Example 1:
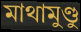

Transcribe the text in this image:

মাথামুণ্ডু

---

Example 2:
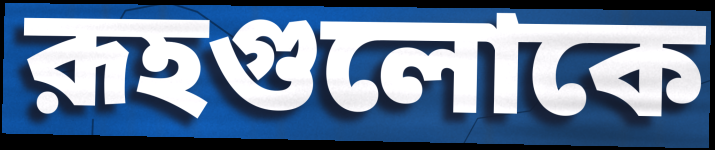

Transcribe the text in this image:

রূহগুলোকে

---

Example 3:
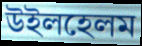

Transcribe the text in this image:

উইলহেলম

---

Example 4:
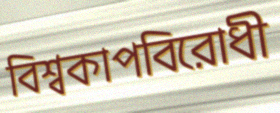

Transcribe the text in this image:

বিশ্বকাপবিরোধী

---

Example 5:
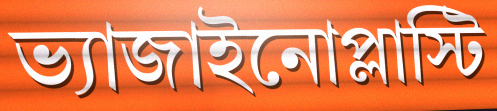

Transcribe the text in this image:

ভ্যাজাইনোপ্লাস্টি